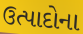
ઉત્પાદોના